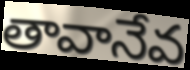
తావానేవ